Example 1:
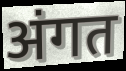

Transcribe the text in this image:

अंगत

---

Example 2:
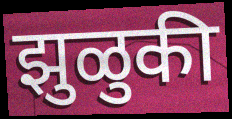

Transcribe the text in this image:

झुळुकी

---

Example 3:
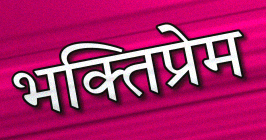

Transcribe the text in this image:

भक्तिप्रेम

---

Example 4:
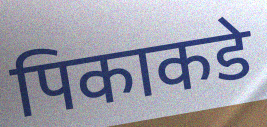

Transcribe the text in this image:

पिकाकडे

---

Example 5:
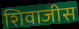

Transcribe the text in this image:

शिवाजीस